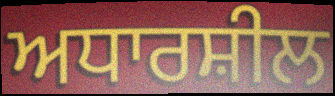
ਅਧਾਰਸ਼ੀਲ